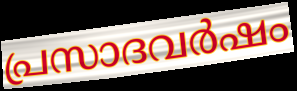
പ്രസാദവർഷം